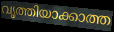
വൃത്തിയാക്കാത്ത